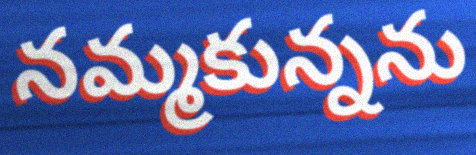
నమ్మకున్నను